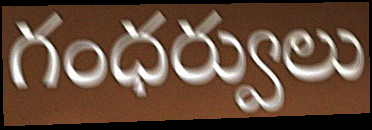
గంధర్వులు